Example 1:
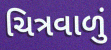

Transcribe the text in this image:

ચિત્રવાળું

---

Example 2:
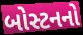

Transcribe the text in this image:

બોસ્ટનનો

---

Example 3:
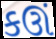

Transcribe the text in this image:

કઊં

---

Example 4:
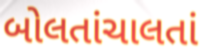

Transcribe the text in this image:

બોલતાંચાલતાં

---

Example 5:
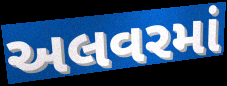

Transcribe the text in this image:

અલવરમાં